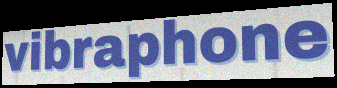
vibraphone